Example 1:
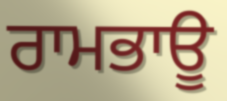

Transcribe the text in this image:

ਰਾਮਭਾਊ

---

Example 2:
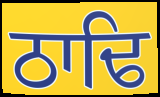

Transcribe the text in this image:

ਠਾਢਿ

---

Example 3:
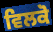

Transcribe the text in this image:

ਵਿਲਕੋ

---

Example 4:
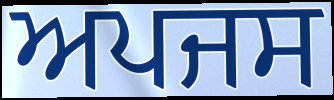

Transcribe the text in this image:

ਅਪਜਸ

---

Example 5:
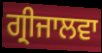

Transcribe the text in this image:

ਗ੍ਰੀਜਾਲਵਾ